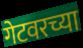
गेटवरच्या